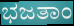
ಭಜತಾಂ